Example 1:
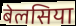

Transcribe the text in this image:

बेलसिया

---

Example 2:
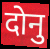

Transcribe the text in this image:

दोनु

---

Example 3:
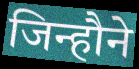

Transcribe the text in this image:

जिन्हौने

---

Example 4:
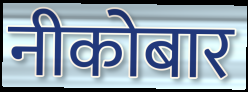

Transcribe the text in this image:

नीकोबार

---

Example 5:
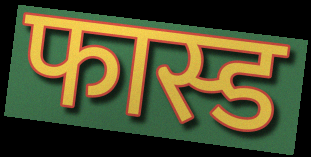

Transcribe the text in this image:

फास्ड